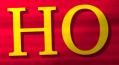
HO